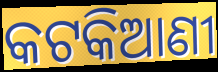
କଟକିଆଣୀ